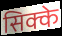
सिक्के